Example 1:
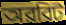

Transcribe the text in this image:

অরবিট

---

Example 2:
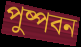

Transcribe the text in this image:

পুষ্পবন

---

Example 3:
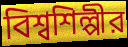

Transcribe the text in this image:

বিশ্বশিল্পীর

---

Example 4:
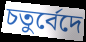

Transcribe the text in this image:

চতুর্বেদে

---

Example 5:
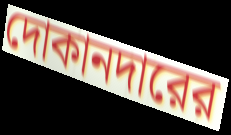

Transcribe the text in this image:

দোকানদারের